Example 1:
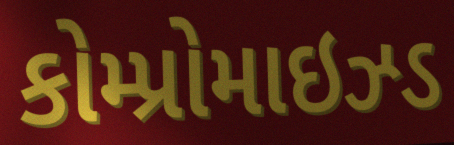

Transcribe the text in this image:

કોમ્પ્રોમાઇઝ્ડ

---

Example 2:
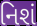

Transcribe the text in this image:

નિશં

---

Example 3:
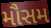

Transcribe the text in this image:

મૌસમ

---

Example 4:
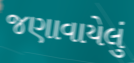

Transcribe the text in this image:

જણાવાયેલું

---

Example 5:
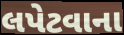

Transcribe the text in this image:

લપેટવાના